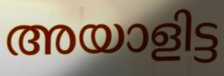
അയാളിട്ട